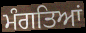
ਮੰਗਤਿਆਂ